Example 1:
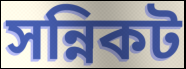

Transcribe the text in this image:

সন্নিকট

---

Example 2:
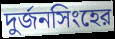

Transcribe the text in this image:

দুর্জনসিংহের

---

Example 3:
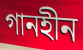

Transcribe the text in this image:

গানহীন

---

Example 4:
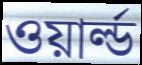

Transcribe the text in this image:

ওয়ার্ল্ড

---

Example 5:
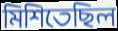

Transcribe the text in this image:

মিশিতেছিল